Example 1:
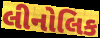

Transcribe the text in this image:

લીનોલિક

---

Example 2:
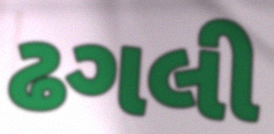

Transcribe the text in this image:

ઢગલી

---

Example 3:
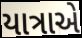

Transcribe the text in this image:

યાત્રાએ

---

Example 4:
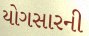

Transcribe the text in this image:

યોગસારની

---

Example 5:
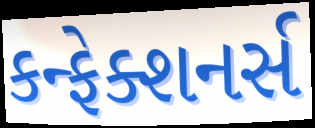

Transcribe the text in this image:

કન્ફેક્શનર્સ